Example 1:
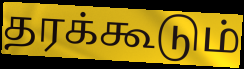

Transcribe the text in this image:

தரக்கூடும்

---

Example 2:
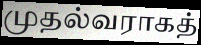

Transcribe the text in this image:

முதல்வராகத்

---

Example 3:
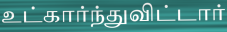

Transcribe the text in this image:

உட்கார்ந்துவிட்டார்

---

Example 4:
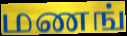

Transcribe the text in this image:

மணங்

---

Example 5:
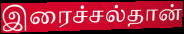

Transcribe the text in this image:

இரைச்சல்தான்